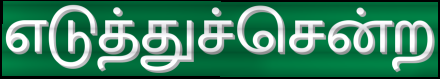
எடுத்துச்சென்ற